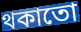
থকাতো